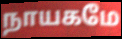
நாயகமே